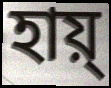
হায়্